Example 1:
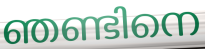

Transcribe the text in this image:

ഞണ്ടിനെ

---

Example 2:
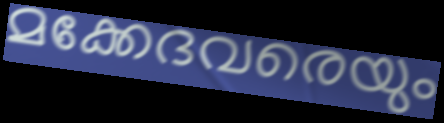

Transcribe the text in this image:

മക്കേദവരെയും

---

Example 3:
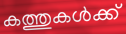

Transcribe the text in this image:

കത്തുകൾക്ക്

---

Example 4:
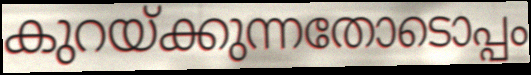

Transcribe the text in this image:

കുറയ്ക്കുന്നതോടൊപ്പം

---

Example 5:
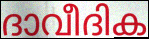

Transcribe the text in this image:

ദാവീദിക